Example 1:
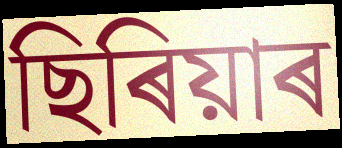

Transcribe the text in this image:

ছিৰিয়াৰ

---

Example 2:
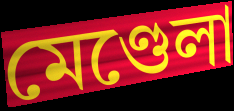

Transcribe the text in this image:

মেণ্ডেলা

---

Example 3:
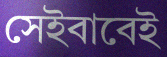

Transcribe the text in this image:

সেইবাবেই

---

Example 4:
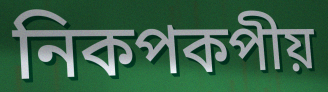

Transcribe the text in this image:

নিকপকপীয়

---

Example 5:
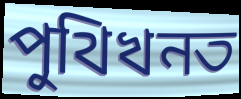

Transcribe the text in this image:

পুথিখনত